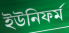
ইউনিফর্ম